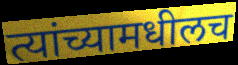
त्यांच्यामधीलच